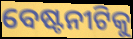
ବେଷ୍ଟନୀଟିକୁ